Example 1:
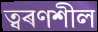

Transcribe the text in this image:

ত্বৰণশীল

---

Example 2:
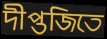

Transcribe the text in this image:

দীপ্তজিতে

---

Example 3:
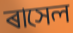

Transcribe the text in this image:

ৰাসেল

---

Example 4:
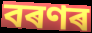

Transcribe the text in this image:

বৰণৰ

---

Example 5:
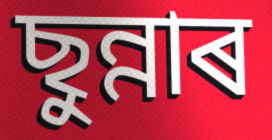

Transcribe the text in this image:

ছুন্নাৰ